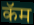
कॅम